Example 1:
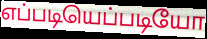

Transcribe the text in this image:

எப்படியெப்படியோ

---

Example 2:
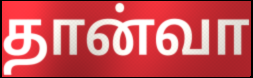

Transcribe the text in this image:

தான்வா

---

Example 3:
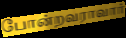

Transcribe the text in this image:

போன்றவராவார்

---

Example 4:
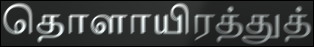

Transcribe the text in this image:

தொளாயிரத்துத்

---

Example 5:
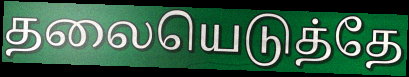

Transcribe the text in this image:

தலையெடுத்தே